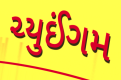
ચ્યુઈંગમ